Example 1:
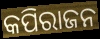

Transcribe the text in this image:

କପିରାଜନ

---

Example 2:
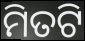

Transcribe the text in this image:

ମିତଟି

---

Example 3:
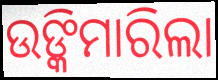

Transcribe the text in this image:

ଉଙ୍କିମାରିଲା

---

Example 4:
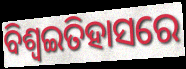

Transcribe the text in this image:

ବିଶ୍ଵଇତିହାସରେ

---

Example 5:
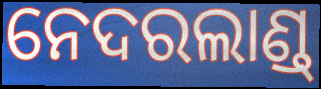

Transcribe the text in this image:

ନେଦରଲାଣ୍ଡ୍